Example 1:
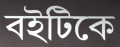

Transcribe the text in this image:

বইটিকে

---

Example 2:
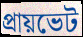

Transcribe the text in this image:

প্রায়ভেট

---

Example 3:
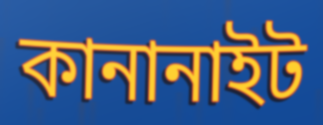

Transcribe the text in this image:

কানানাইট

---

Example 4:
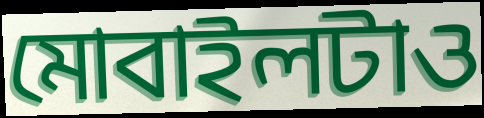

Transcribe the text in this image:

মোবাইলটাও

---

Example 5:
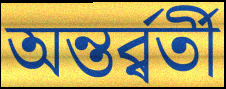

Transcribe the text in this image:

অন্তর্র্বর্তী